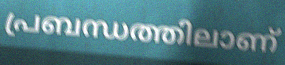
പ്രബന്ധത്തിലാണ്